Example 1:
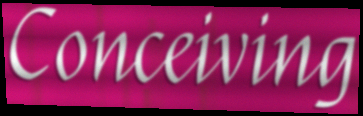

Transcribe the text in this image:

Conceiving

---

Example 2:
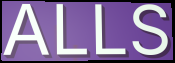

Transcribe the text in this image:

ALLS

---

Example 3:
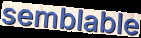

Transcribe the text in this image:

semblable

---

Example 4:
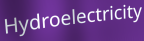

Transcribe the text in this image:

Hydroelectricity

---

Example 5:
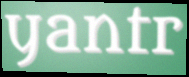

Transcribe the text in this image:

yantr